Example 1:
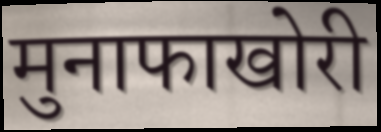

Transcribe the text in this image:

मुनाफाखोरी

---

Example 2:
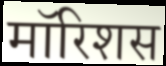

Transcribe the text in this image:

मॉरिशस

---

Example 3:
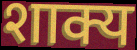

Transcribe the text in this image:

शाक्य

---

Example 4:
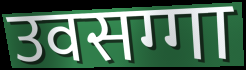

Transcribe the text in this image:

उवसग्गा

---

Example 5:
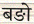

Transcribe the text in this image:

बङो